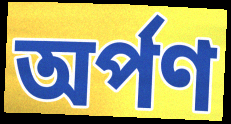
অর্পণ